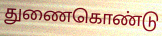
துணைகொண்டு